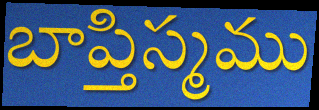
బాప్తిస్మము